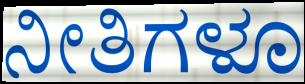
ನೀತಿಗಳೂ